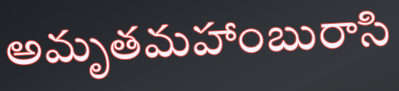
అమృతమహాంబురాసి